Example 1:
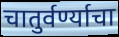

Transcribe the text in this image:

चातुर्वर्ण्याचा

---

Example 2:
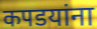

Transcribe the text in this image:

कपडयांना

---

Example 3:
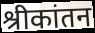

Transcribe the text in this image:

श्रीकांतन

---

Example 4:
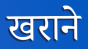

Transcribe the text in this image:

खराने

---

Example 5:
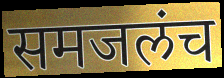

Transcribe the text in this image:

समजलंच